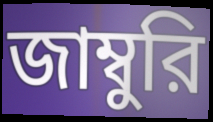
জাম্বুরি